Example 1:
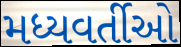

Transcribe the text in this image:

મધ્યવર્તીઓ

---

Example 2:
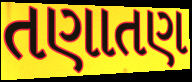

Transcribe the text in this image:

તણાતણ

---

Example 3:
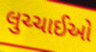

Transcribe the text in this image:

લુચ્ચાઈઓ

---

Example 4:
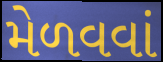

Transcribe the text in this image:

મેળવવાં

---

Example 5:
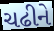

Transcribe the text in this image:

ચઢીને